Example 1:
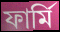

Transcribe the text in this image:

ফার্মি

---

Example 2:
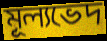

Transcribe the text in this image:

মূল্যভেদ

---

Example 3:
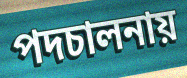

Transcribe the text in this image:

পদচালনায়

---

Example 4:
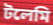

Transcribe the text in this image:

টলেমি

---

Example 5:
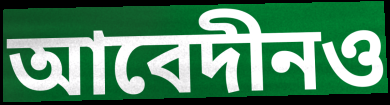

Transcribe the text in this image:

আবেদীনও